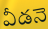
వీడనె